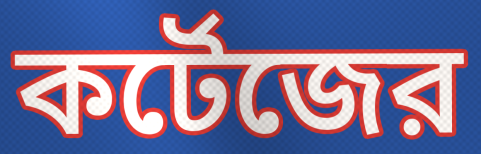
কর্টেজের